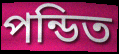
পন্ডিত